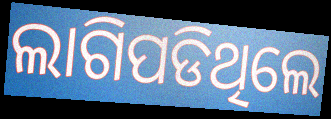
ଲାଗିପଡିଥିଲେ